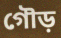
গৌড়